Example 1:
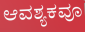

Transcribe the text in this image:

ಆವಶ್ಯಕವೂ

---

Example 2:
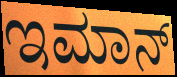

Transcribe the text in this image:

ಇಮಾನ್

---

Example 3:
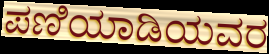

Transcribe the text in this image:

ಪಣಿಯಾಡಿಯವರ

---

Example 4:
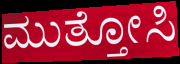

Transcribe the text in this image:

ಮುತ್ತೋಸಿ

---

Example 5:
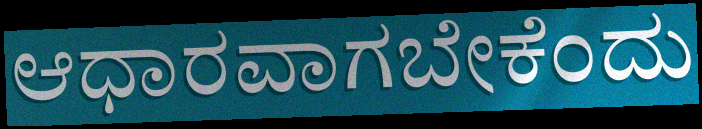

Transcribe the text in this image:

ಆಧಾರವಾಗಬೇಕೆಂದು